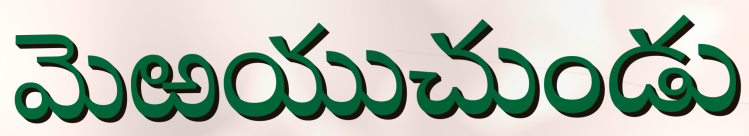
మెఱయుచుండు